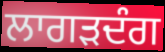
ਲਾਗੜਦੰਗ